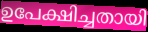
ഉപേക്ഷിച്ചതായി